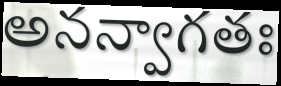
అనన్వాగతః